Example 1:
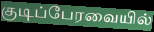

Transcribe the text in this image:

குடிப்பேரவையில்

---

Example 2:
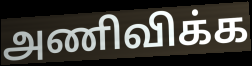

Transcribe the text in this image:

அணிவிக்க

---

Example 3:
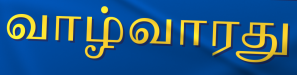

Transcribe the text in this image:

வாழ்வாரது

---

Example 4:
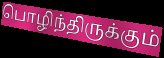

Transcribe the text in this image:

பொழிந்திருக்கும்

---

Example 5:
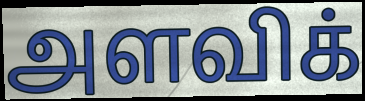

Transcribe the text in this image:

அளவிக்